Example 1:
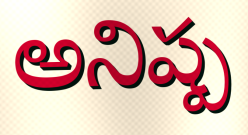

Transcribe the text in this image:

అనిష్ప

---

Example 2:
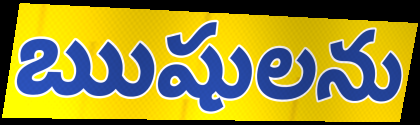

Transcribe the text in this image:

ఋషులను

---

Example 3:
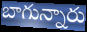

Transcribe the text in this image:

బాగున్నారు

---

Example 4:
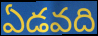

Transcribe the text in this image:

ఏడవది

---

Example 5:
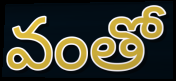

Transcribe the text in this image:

వంతో